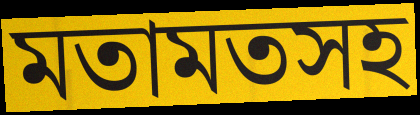
মতামতসহ